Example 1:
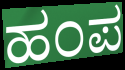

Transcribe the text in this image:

ಹಂಪ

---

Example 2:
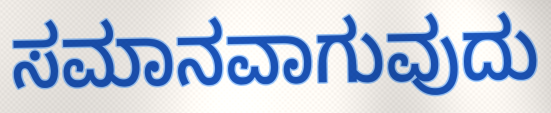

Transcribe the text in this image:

ಸಮಾನವಾಗುವುದು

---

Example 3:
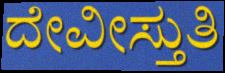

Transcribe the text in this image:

ದೇವೀಸ್ತುತಿ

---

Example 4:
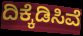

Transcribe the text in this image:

ದಿಕ್ಕೆಡಿಸಿವೆ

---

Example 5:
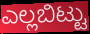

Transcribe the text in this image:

ಎಲ್ಲಬಿಟ್ಟು